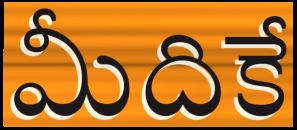
మీదికే